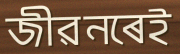
জীৱনৰেই